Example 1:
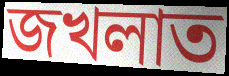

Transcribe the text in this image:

জখলাত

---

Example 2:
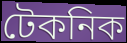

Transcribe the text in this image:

টেকনিক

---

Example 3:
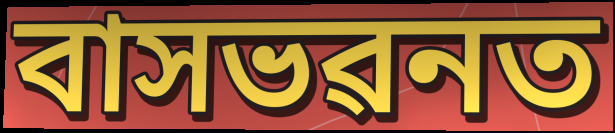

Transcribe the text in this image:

বাসভৱনত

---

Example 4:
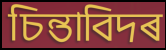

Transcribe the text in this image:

চিন্তাবিদৰ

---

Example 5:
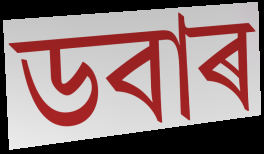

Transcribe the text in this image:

ডবাৰ